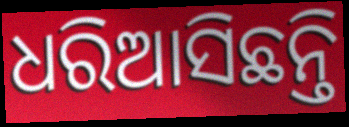
ଧରିଆସିଛନ୍ତି